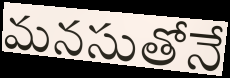
మనసుతోనే